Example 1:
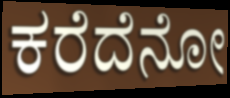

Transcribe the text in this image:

ಕರೆದೆನೋ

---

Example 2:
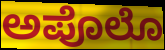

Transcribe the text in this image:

ಅಪೊಲೊ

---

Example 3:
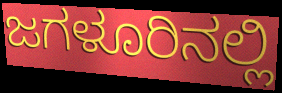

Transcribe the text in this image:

ಜಗಳೂರಿನಲ್ಲಿ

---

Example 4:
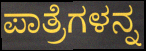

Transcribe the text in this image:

ಪಾತ್ರೆಗಳನ್ನ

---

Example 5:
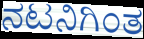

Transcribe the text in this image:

ನಟನಿಗಿಂತ